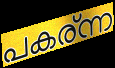
പകര്ന്ന